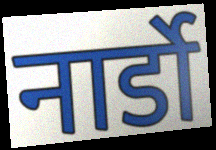
नार्डो